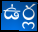
ఉర్ల